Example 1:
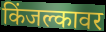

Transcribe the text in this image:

किंजल्कावर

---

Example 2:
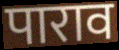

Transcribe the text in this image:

पाराव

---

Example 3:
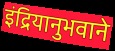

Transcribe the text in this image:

इंद्रियानुभवाने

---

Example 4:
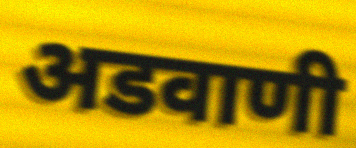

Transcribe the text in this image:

अडवाणी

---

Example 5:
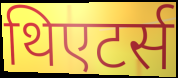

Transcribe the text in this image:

थिएटर्स